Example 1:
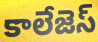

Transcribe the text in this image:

కాలేజెస్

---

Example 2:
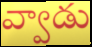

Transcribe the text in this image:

వ్వాడు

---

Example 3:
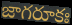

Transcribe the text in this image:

జాగరూకః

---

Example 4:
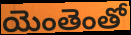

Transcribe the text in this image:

యెంతెంతో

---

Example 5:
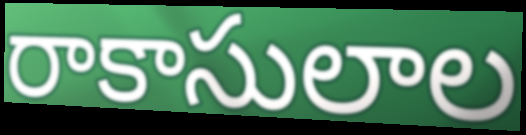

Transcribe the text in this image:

రాకాసులాల